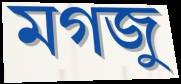
মগজু